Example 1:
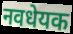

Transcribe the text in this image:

नवधेयक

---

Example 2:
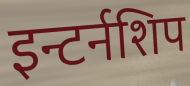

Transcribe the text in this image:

इन्टर्नशिप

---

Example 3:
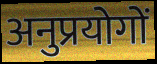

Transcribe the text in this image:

अनुप्रयोगों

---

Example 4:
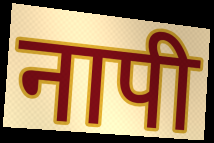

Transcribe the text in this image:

नापी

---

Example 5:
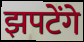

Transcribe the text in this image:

झपटेंगे